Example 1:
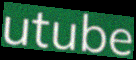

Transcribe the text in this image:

utube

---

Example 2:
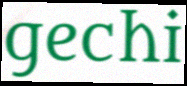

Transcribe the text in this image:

gechi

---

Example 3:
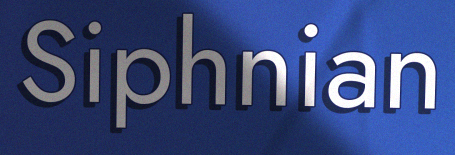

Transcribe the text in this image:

Siphnian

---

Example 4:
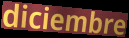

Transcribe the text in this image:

diciembre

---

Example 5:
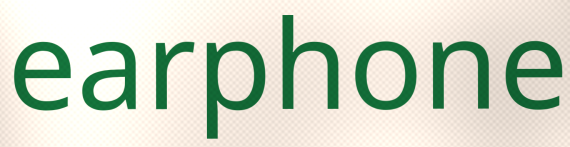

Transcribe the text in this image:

earphone